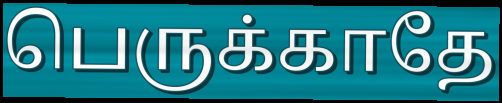
பெருக்காதே